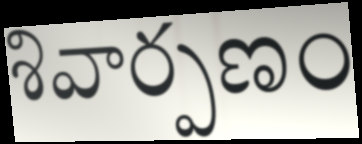
శివార్పణం